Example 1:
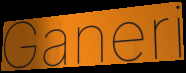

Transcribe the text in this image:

Ganeri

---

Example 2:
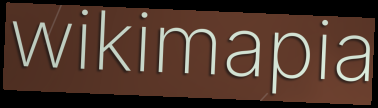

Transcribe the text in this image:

wikimapia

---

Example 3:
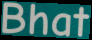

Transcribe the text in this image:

Bhat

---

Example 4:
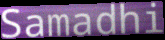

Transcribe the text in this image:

Samadhi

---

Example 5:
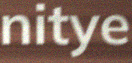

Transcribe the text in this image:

nitye